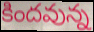
కిందవున్న